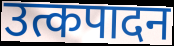
उत्कपादन